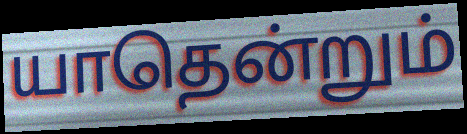
யாதென்றும்